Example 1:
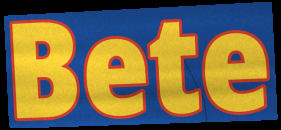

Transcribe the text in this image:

Bete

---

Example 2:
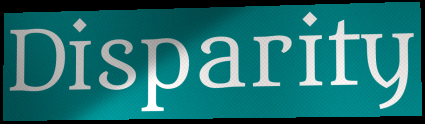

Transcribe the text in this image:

Disparity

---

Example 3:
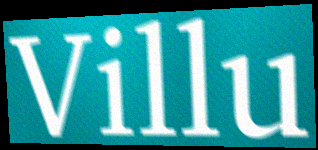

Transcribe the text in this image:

Villu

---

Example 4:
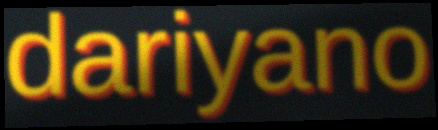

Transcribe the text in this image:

dariyano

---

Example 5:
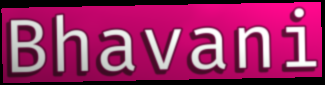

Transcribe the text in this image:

Bhavani